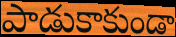
పాడుకాకుండా